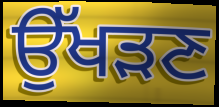
ਉੱਖੜਣ